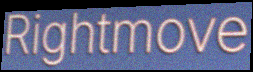
Rightmove